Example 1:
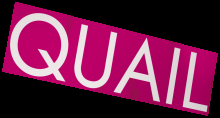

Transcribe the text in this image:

QUAIL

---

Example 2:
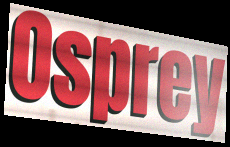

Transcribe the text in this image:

Osprey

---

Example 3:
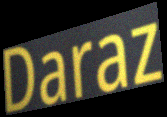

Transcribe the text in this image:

Daraz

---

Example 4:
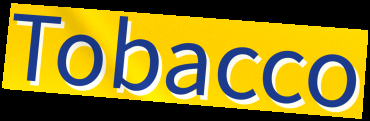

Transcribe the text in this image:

Tobacco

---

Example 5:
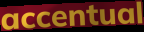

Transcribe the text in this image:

accentual